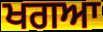
ਖਗਆ